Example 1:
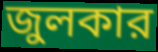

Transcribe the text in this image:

জুলকার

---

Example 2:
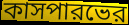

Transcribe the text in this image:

কাসপারভের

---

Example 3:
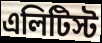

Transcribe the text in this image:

এলিটিস্ট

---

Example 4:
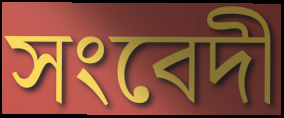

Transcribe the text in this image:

সংবেদী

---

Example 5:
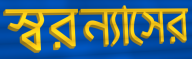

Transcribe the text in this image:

স্বরন্যাসের